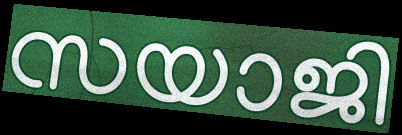
സയാജി